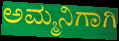
ಅಮ್ಮನಿಗಾಗಿ